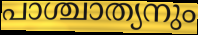
പാശ്ചാത്യനും